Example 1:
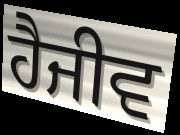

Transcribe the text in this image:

ਹੈਜੀਵ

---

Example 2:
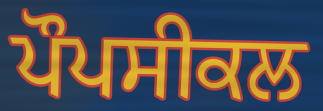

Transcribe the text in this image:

ਪੌਪਸੀਕਲ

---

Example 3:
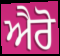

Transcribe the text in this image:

ਐਰੋ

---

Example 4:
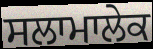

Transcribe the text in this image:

ਸਲਾਮਾਲੇਕ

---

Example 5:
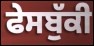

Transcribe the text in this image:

ਫੇਸਬੁੱਕੀ